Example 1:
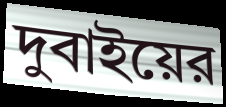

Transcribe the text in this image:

দুবাইয়ের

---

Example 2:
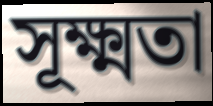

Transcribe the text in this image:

সূক্ষ্মতা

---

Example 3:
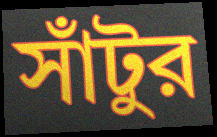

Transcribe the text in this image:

সাঁটুর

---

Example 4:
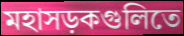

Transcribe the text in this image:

মহাসড়কগুলিতে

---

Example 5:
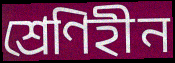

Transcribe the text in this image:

শ্রেণিহীন